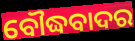
ବୌଦ୍ଧବାଦର